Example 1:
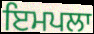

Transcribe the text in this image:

ਇਮਪਲਾ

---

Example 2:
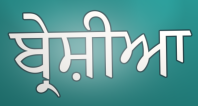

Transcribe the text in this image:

ਬ੍ਰੇਸ਼ੀਆ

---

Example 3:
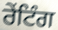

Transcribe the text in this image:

ਰੇਂਟਿੰਗ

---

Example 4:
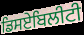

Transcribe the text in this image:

ਡਿਸਏਬਿਲੀਟੀ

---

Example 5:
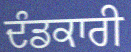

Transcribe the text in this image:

ਦੰਡਕਾਰੀ